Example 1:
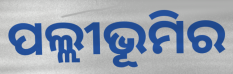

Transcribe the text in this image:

ପଲ୍ଲୀଭୂମିର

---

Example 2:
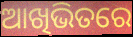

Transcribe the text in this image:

ଆଖିଭିତରେ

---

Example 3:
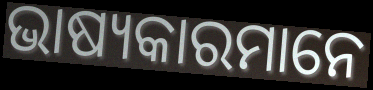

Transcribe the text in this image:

ଭାଷ୍ୟକାରମାନେ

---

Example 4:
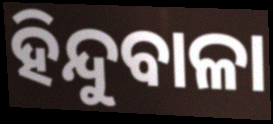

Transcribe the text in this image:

ହିନ୍ଦୁବାଳା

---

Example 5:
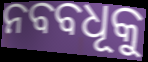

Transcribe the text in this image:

ନବବଧୂକୁ